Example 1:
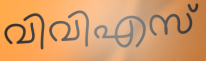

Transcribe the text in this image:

വിവിഎസ്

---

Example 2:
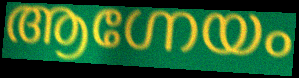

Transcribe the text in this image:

ആഗ്നേയം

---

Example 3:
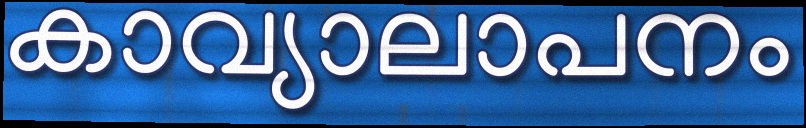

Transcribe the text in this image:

കാവ്യാലാപനം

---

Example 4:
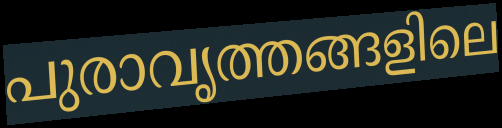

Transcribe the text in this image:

പുരാവൃത്തങ്ങളിലെ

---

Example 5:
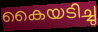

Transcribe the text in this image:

കൈയടിച്ചു